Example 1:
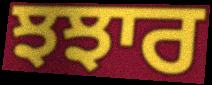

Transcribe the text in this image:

ਝਝਾਰ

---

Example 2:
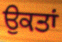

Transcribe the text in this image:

ਉਕਤਾਂ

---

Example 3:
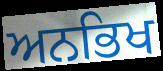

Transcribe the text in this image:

ਅਨਭਿਖ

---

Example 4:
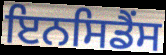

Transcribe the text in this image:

ਇਨਸਿਡੈਂਸ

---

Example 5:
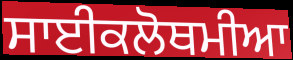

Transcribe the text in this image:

ਸਾਈਕਲੋਥਮੀਆ